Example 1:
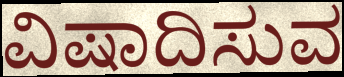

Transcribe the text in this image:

ವಿಷಾದಿಸುವ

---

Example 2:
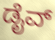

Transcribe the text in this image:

ಡೈವ್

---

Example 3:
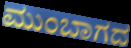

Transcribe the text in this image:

ಮುಂಬಾಗದ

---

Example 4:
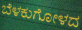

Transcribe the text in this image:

ಬೆಳಕುಗೋಳದ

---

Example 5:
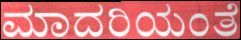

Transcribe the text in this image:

ಮಾದರಿಯಂತೆ